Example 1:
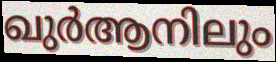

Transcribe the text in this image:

ഖുർആനിലും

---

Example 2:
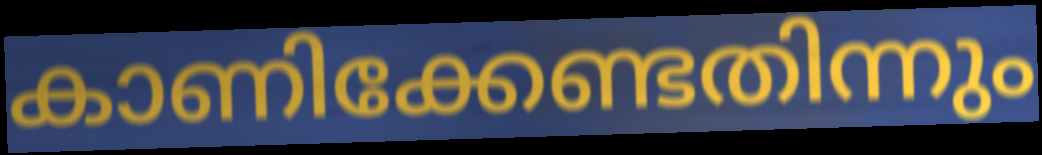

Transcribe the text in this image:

കാണിക്കേണ്ടതിന്നും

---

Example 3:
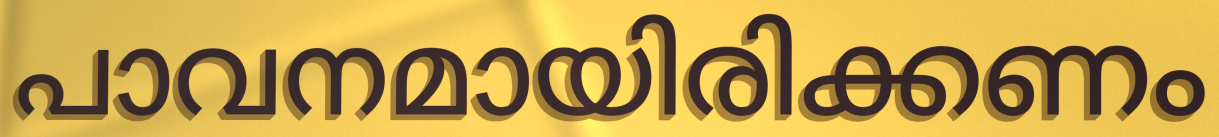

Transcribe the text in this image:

പാവനമായിരിക്കണം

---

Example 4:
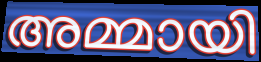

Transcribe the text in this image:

അമ്മായി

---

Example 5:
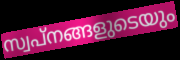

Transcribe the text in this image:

സ്വപ്നങ്ങളുടെയും